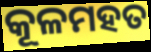
କୂଳମହତ